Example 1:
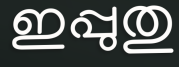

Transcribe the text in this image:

ഇപ്പുതു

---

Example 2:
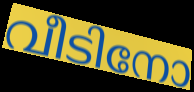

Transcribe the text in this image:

വീടിനോ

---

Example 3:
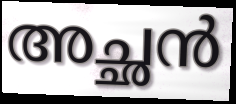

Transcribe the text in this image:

അച്ഛൻ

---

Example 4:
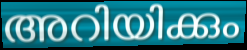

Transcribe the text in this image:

അറിയിക്കും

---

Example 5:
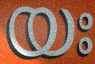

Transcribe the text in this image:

യഃ